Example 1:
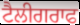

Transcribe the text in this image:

ਟੈਲੀਗਰਾਫ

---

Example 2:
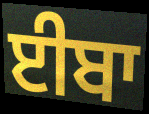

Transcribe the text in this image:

ਈਬਾ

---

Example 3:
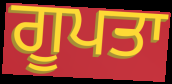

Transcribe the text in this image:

ਗੂਪਤਾ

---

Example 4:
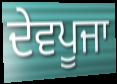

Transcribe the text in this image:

ਦੇਵਪੂਜਾ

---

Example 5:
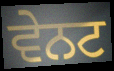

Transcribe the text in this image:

ਵੇਨਟ